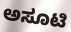
ಅಸೂಟಿ